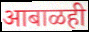
आबाळही